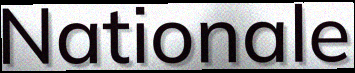
Nationale